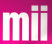
mii